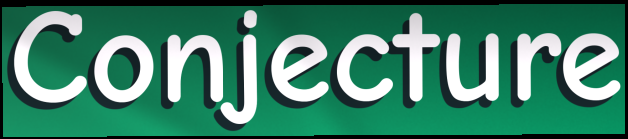
Conjecture